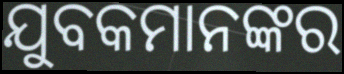
ଯୁବକମାନଙ୍କର